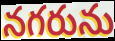
నగరును